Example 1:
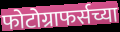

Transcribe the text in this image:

फोटोग्राफर्सच्या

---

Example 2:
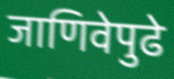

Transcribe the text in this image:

जाणिवेपुढे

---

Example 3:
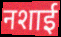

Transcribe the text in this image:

नशाई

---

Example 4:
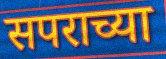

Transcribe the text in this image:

सपराच्या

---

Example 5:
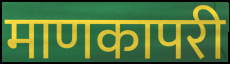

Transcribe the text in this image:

माणकापरी